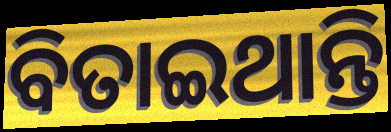
ବିତାଇଥାନ୍ତି